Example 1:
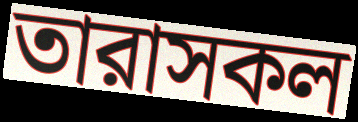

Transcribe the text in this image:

তারাসকল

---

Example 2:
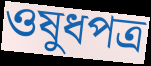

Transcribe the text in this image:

ওষুধপত্র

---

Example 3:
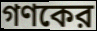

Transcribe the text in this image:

গণকের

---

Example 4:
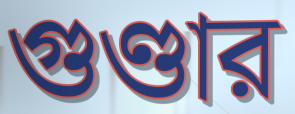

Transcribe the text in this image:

গুণ্ডার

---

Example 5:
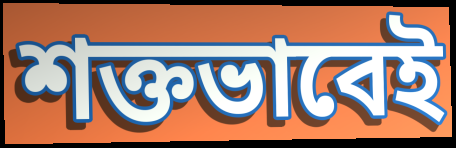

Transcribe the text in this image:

শক্তভাবেই